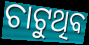
ଚାଟୁଥିବ